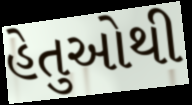
હેતુઓથી